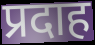
प्रदाह